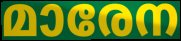
മാരേന